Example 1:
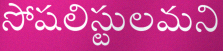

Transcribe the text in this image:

సోషలిస్టులమని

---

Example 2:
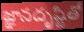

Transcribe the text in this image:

జ్ఞానదృష్టితో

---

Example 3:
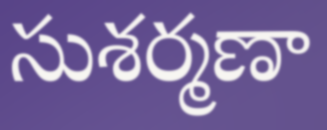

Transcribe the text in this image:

సుశర్మణా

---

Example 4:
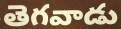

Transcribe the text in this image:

తెగవాడు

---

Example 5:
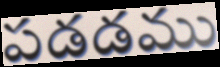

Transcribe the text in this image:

పడడము